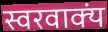
स्वरवाक्यं